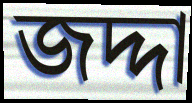
জদ্দা